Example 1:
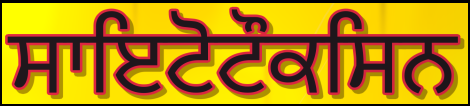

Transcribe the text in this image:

ਸਾਇਟੋਟੌਕਸਿਨ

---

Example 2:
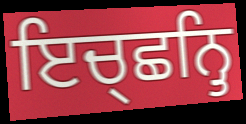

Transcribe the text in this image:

ਇਚ੍ਛਨ੍ਤਿ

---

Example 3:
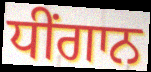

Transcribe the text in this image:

ਧੀਂਗਾਨ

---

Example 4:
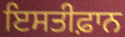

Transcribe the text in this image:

ਇਸਤੀਫ਼ਾਨ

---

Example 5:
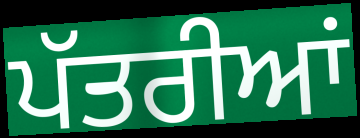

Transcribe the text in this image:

ਪੱਤਰੀਆਂ